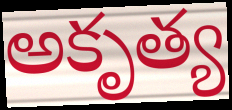
అకృత్య